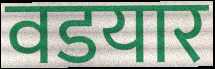
वडयार